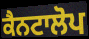
ਕੈਨਟਾਲੋਪ